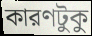
কারণটুকু